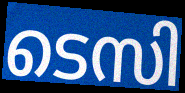
ടെസി